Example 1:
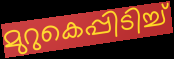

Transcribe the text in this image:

മുറുകെപ്പിടിച്ച്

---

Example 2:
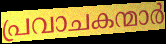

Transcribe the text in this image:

പ്രവാചകന്മാർ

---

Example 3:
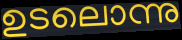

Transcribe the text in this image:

ഉടലൊന്നു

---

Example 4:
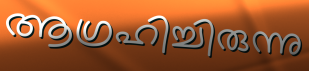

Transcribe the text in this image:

ആഗ്രഹിച്ചിരുന്നു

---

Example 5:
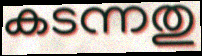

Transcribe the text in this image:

കടന്നതു